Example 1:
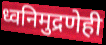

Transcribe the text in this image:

ध्वनिमुद्रणेही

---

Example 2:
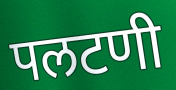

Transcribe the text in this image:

पलटणी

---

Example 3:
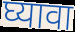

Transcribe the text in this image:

घ्यावा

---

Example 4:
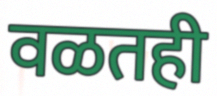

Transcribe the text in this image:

वळतही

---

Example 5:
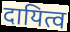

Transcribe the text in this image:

दायित्व